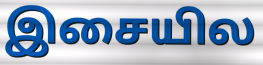
இசையில